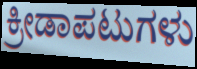
ಕ್ರೀಡಾಪಟುಗಳು